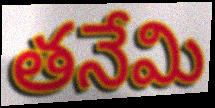
తనేమి